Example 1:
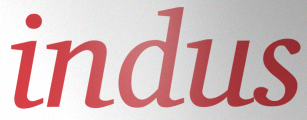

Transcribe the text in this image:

indus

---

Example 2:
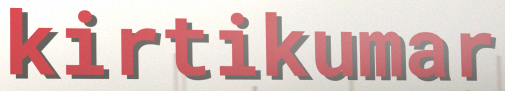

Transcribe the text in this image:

kirtikumar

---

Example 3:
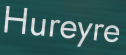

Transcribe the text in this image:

Hureyre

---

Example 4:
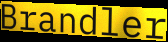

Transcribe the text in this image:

Brandler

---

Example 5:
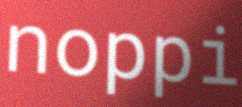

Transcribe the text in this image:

noppi